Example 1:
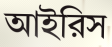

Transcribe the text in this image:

আইরিস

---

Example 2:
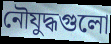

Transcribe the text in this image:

নৌযুদ্ধগুলো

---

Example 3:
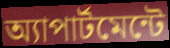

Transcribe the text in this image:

অ্যাপার্টমেন্টে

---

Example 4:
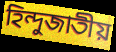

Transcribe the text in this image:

হিন্দুজাতীয়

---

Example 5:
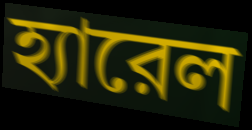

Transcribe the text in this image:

হ্যারেল